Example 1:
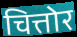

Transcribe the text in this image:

चित्तोर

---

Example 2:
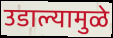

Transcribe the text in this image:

उडाल्यामुळे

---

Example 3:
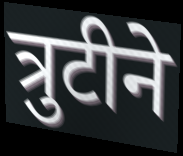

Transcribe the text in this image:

त्रुटीने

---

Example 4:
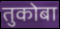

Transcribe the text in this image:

तुकोबा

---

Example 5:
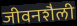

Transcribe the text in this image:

जीवनशैली